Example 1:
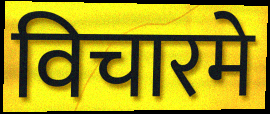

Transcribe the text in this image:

विचारमे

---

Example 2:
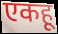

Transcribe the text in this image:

एकहू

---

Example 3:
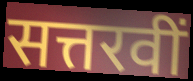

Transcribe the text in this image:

सत्तरवीं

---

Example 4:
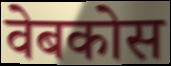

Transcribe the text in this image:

वेबकोस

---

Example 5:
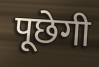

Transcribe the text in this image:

पूछेगी